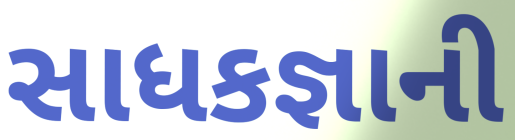
સાધકજ્ઞાની